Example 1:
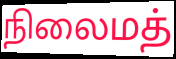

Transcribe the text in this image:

நிலைமத்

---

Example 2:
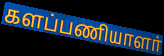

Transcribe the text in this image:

களப்பணியாளர்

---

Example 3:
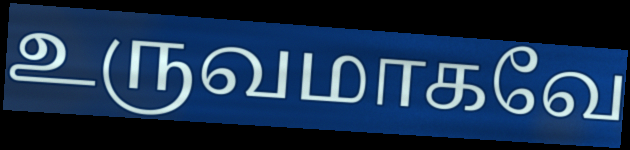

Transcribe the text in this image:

உருவமாகவே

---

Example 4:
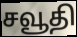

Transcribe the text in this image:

சவூதி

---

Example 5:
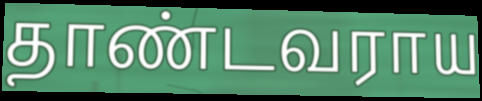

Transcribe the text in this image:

தாண்டவராய